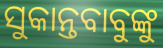
ସୁକାନ୍ତବାବୁଙ୍କୁ